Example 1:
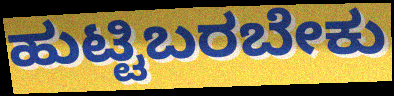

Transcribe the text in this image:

ಹುಟ್ಟಿಬರಬೇಕು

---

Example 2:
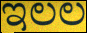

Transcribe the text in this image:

ಇಲಲ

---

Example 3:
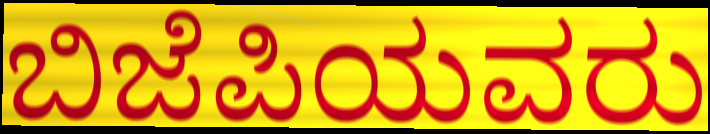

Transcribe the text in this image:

ಬಿಜೆಪಿಯವರು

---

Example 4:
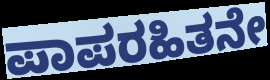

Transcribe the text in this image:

ಪಾಪರಹಿತನೇ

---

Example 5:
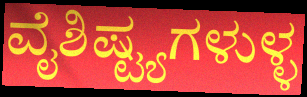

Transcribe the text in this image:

ವೈಶಿಷ್ಟ್ಯಗಳುಳ್ಳ